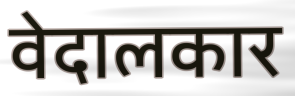
वेदालकार